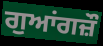
ਗੁਆਂਗਜ਼ੌ